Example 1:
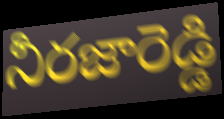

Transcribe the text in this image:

నీరజారెడ్డి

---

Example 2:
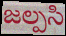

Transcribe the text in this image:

జల్పసి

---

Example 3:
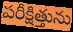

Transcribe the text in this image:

పరీక్షిత్తును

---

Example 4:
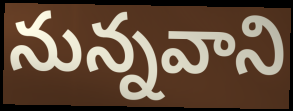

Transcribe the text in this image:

నున్నవాని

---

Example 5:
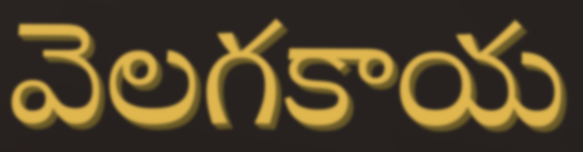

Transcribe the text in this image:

వెలగకాయ